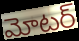
మోటర్